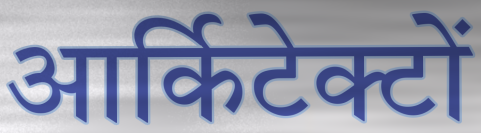
आर्किटेक्टों